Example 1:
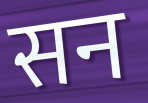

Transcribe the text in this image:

सन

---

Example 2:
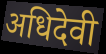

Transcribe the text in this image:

अधिदेवी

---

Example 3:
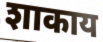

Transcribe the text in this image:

शाकाय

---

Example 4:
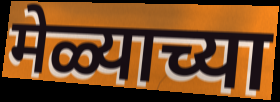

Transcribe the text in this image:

मेळ्याच्या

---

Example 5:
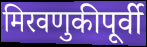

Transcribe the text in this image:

मिरवणुकीपूर्वी